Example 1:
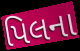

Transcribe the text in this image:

પિલના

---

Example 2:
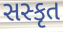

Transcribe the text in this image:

સસ્કૃત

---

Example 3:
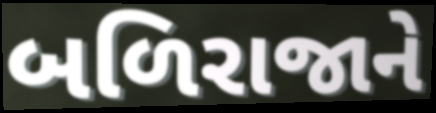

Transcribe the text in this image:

બળિરાજાને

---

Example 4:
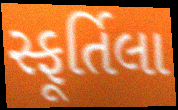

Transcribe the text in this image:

સ્ફૂર્તિલા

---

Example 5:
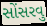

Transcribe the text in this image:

સોંસરવુ